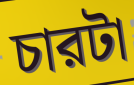
চারটা